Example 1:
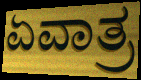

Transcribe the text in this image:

ಏವಾತ್ರ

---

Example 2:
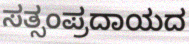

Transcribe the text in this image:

ಸತ್ಸಂಪ್ರದಾಯದ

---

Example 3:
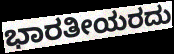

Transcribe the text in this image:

ಭಾರತೀಯರದು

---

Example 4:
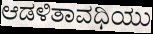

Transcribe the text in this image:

ಆಡಳಿತಾವಧಿಯು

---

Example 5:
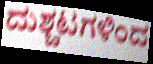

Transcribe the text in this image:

ದುಶ್ಚಟಗಳಿಂದ